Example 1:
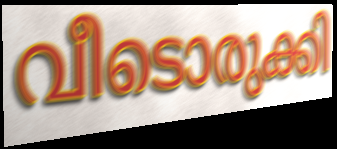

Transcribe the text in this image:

വീടൊരുക്കി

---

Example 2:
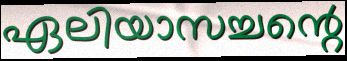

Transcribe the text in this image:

ഏലിയാസച്ചന്റെ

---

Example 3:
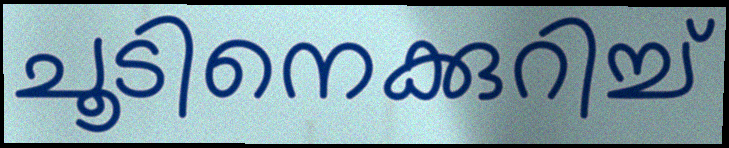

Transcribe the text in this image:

ചൂടിനെക്കുറിച്ച്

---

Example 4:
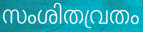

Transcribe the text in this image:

സംശിതവ്രതം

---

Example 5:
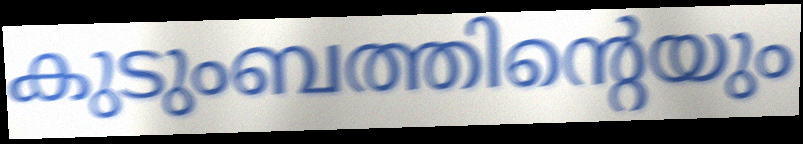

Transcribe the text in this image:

കുടുംബത്തിന്റെയും